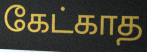
கேட்காத